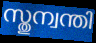
സ്തുന്വന്തി